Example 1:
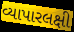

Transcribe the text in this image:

વ્યાપારલક્ષી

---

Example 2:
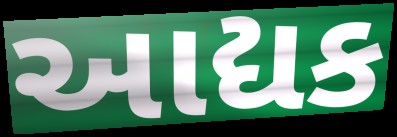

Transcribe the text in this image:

આદ્યક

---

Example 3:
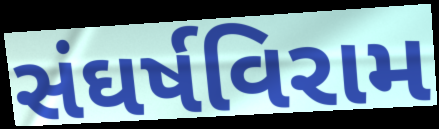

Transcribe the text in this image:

સંઘર્ષવિરામ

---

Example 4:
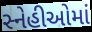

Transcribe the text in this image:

સ્નેહીઓમાં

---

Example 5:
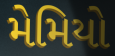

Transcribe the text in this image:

મેમિયો